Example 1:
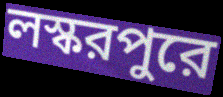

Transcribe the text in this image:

লস্করপুরে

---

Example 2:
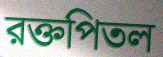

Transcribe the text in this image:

রক্তপিতল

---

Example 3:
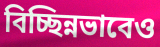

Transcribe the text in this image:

বিচ্ছিন্নভাবেও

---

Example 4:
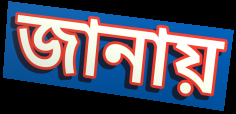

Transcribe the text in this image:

জানায়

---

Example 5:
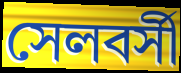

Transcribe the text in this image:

সেলবর্সী